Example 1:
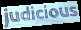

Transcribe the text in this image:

judicious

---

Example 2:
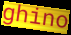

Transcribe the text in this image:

ghino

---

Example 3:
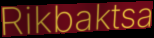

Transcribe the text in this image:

Rikbaktsa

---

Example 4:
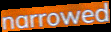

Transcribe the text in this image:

narrowed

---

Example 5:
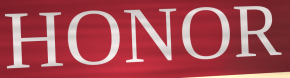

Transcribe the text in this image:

HONOR